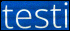
testi